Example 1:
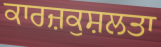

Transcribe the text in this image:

ਕਾਰਜ਼ਕੁਸ਼ਲਤਾ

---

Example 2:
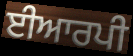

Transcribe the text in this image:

ਈਆਰਪੀ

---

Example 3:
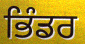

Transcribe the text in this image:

ਭਿੰਡਰ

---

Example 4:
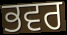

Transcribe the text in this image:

ਭਵਰ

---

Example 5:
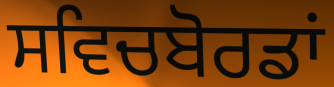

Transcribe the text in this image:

ਸਵਿਚਬੋਰਡਾਂ